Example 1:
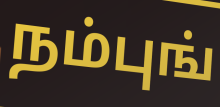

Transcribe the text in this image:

நம்புங்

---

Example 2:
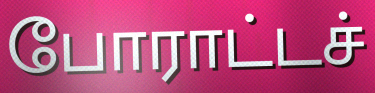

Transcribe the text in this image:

போராட்டச்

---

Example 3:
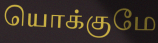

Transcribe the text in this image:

யொக்குமே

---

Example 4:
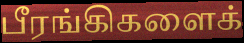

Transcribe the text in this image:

பீரங்கிகளைக்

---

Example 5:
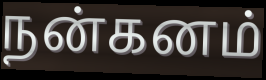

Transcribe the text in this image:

நன்கனம்